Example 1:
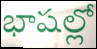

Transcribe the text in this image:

భాషల్లో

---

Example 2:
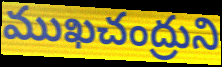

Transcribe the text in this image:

ముఖచంద్రుని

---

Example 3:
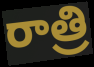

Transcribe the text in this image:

రాత్రి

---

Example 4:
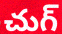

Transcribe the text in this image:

చుగ్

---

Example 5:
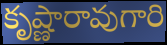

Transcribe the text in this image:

కృష్ణారావుగారి